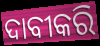
ଦାବୀକରି